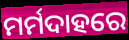
ମର୍ମଦାହରେ